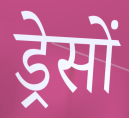
ड्रेसों